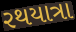
રથયાત્રા